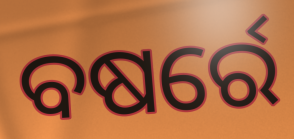
ବଷର୍ରେ